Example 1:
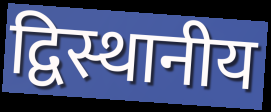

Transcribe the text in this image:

द्विस्थानीय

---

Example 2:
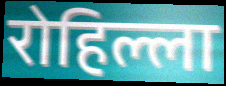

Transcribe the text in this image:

रोहिल्ला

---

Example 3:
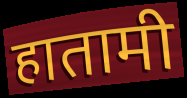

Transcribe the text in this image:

हातामी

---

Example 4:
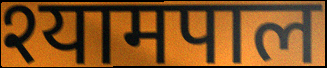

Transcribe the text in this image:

श्यामपाल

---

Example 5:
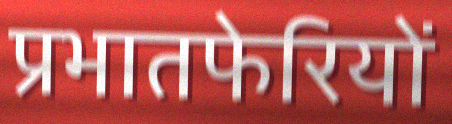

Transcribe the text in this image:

प्रभातफेरियों